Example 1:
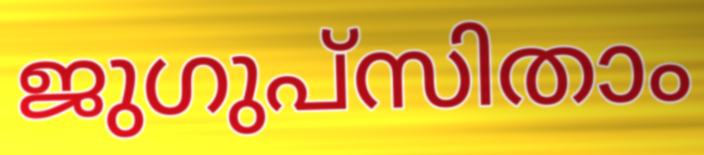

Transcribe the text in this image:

ജുഗുപ്സിതാം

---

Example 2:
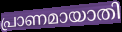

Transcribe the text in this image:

പ്രാണമായാതി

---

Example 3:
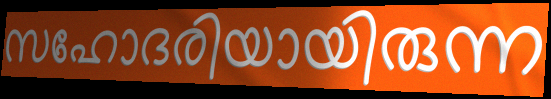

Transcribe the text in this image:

സഹോദരിയായിരുന്ന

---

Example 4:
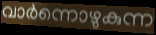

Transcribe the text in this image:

വാർന്നൊഴുകുന്ന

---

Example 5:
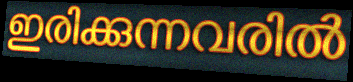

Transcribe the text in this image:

ഇരിക്കുന്നവരിൽ